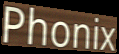
Phonix